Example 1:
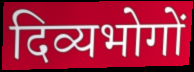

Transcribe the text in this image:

दिव्यभोगों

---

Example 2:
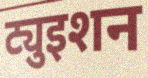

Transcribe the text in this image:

ट्युइशन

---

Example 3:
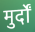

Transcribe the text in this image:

मुर्दों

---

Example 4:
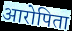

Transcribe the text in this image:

आरोपिता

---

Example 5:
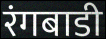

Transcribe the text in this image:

रंगबाडी